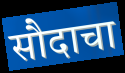
सौदाचा